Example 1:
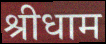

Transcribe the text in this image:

श्रीधाम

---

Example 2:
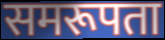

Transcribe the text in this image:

समरूपता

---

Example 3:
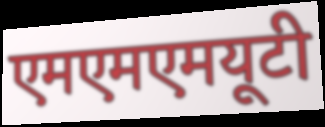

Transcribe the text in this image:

एमएमएमयूटी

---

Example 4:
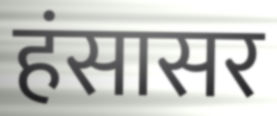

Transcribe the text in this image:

हंसासर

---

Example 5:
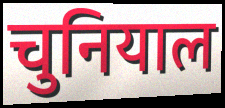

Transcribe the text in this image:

चुनियाल